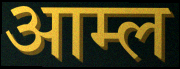
आम्ल